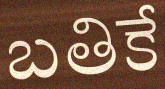
బతికే